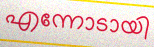
എന്നോടായി